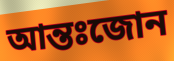
আন্তঃজোন